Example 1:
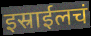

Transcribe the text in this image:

इस्राईलचं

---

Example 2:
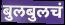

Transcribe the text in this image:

बुलबुलचं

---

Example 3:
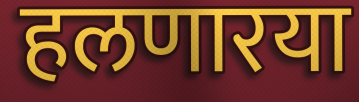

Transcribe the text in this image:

हलणारया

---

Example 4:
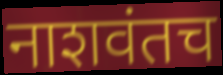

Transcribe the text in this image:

नाशवंतच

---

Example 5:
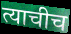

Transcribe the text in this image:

त्याचीच